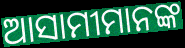
ଆସାମୀମାନଙ୍କ